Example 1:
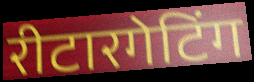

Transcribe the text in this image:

रीटारगेटिंग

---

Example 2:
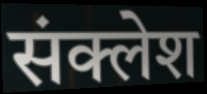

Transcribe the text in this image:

संक्लेश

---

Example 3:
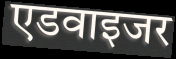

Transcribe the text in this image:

एडवाइजर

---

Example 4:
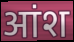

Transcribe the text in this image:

आंश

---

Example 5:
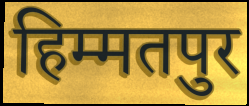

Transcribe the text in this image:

हिम्मतपुर